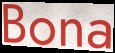
Bona